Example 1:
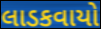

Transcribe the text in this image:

લાડકવાયો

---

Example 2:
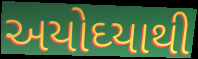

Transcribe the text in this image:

અયોઘ્યાથી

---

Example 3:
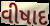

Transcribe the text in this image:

વીષાદ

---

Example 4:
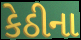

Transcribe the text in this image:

કેઠીના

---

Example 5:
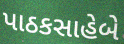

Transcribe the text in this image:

પાઠકસાહેબે